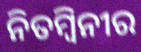
ନିତମ୍ବିନୀର